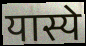
यास्ये